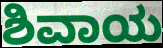
ಶಿವಾಯ